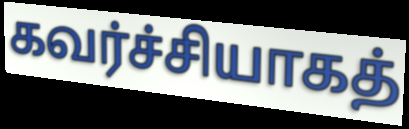
கவர்ச்சியாகத்